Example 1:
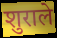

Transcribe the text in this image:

शुराले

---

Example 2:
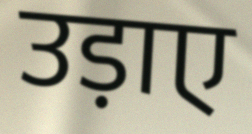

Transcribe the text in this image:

उड़ाए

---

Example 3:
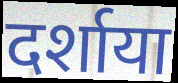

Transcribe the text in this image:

दर्शाया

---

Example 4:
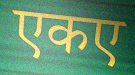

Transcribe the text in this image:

एकए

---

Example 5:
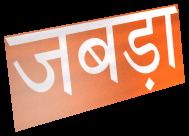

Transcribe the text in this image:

जबड़ा